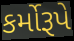
કર્મોરૂપે